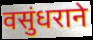
वसुंधराने